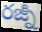
రజ్నీ